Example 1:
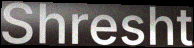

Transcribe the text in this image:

Shresht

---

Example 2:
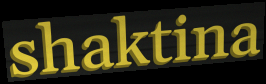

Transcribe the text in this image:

shaktina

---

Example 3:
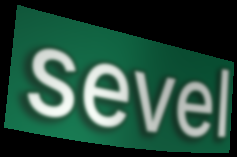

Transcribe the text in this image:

sevel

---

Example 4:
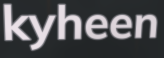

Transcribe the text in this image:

kyheen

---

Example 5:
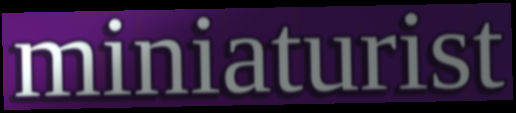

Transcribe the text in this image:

miniaturist